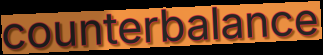
counterbalance